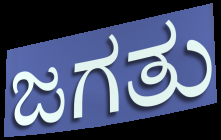
ಜಗತು